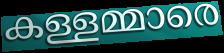
കള്ളമ്മാരെ